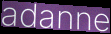
adanne